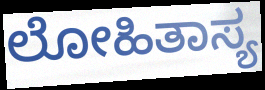
ಲೋಹಿತಾಸ್ಯ